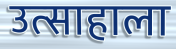
उत्साहाला